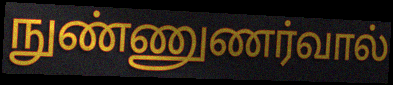
நுண்ணுணர்வால்